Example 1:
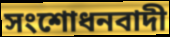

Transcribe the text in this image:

সংশোধনবাদী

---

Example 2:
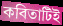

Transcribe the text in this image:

কবিতাটিই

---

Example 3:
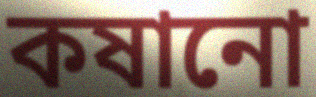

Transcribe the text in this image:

কষানো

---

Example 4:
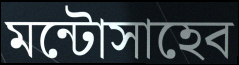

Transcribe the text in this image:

মন্টোসাহেব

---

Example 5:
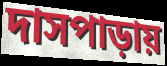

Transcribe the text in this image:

দাসপাড়ায়